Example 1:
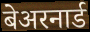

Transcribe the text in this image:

बेअरनार्ड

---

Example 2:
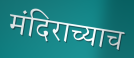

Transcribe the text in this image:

मंदिराच्याच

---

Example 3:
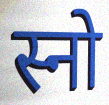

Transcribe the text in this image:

स्नो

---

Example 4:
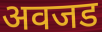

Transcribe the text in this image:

अवजड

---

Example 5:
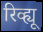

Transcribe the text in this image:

रिव्ह्यू